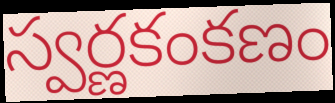
స్వర్ణకంకణం